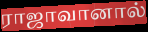
ராஜாவானால்